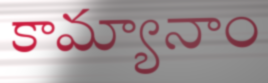
కామ్యానాం